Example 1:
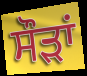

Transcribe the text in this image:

ਸੌੜਾਂ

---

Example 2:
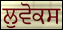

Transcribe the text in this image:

ਲੁਵੋਕਸ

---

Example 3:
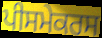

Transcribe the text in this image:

ਪੀਸਮੇਕਰਸ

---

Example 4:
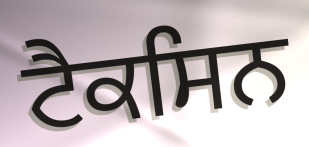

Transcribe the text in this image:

ਟੈਕਸਿਨ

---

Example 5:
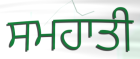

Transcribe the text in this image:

ਸਮਹਾਤੀ